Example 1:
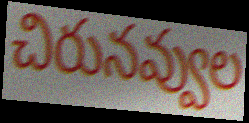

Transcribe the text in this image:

చిరునవ్వుల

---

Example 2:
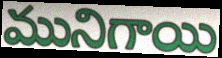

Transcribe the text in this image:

మునిగాయి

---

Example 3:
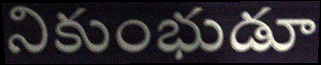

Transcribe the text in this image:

నికుంభుడూ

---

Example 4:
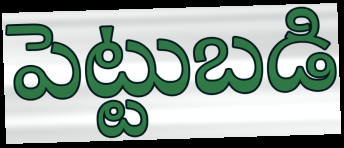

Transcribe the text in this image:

పెట్టుబడి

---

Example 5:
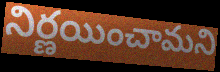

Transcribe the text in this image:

నిర్ణయించామని